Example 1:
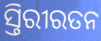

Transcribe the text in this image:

ସ୍ତିରୀରତନ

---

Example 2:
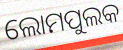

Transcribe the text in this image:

ଲୋମପୁଲକ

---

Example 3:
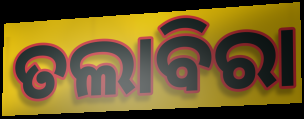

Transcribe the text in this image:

ତଲାବିରା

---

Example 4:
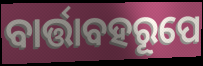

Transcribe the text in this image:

ବାର୍ତ୍ତାବହରୂପେ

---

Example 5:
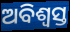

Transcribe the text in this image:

ଅବିଶ୍ୱସ୍ତ